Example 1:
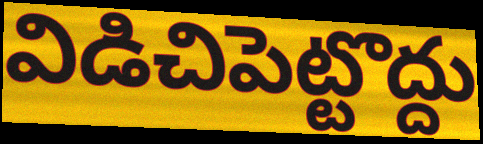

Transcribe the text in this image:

విడిచిపెట్టొద్దు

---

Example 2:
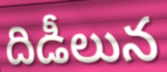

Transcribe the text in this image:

దిడీలున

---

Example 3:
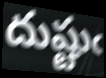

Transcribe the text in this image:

దుష్టుఁ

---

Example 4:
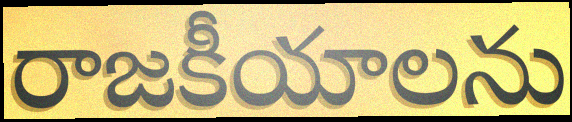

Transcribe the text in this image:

రాజకీయాలను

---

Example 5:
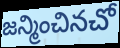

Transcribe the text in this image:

జన్మించినచో